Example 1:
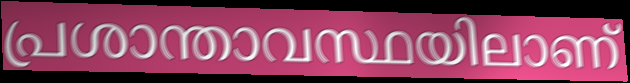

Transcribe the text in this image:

പ്രശാന്താവസ്ഥയിലാണ്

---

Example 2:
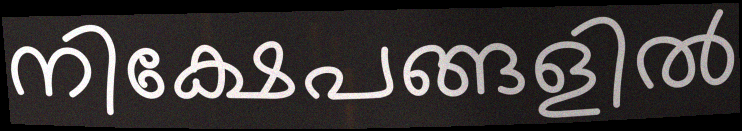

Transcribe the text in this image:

നിക്ഷേപങ്ങളിൽ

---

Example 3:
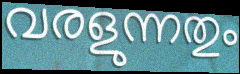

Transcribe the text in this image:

വരളുന്നതും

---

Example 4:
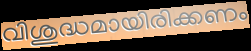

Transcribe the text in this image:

വിശുദ്ധമായിരിക്കണം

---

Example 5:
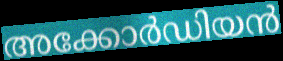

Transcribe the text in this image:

അക്കോർഡിയൻ